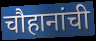
चौहानांची